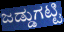
ಜಡ್ಡುಗಟ್ಟಿ